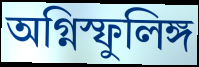
অগ্নিস্ফুলিঙ্গ